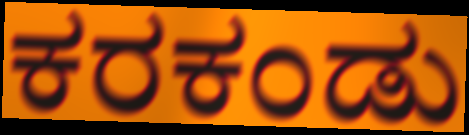
ಕರಕಂಡು